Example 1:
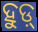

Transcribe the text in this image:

ହୁଡ଼୍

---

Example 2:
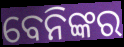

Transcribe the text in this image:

ବେନିଙ୍କର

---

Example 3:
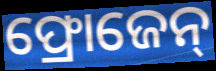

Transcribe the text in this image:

ଫ୍ରୋଜେନ୍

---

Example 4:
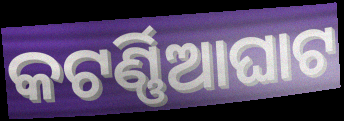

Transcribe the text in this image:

କଟର୍ଣ୍ଣିଆଘାଟ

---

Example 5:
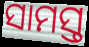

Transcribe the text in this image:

ସାମସ୍ତ